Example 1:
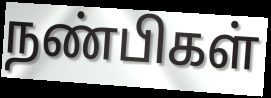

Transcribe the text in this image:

நண்பிகள்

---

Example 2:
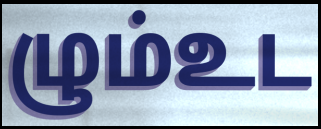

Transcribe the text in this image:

ழும்உட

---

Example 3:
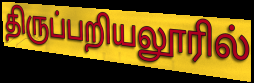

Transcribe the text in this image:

திருப்பறியலூரில்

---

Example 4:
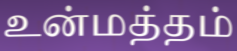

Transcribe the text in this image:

உன்மத்தம்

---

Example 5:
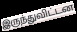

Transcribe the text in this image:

இருந்துவிட்டன